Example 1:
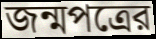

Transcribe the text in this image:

জন্মপত্রের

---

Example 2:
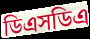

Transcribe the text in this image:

ডিএসডিএ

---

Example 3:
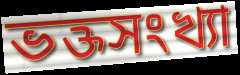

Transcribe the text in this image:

ভক্তসংখ্যা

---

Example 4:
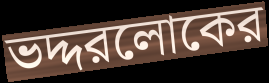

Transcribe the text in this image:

ভদ্দরলোকের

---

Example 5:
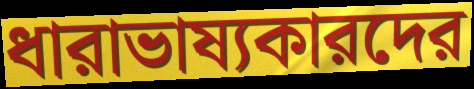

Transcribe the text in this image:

ধারাভাষ্যকারদের